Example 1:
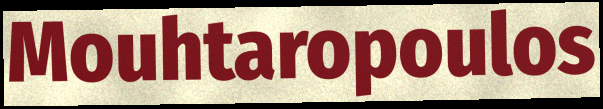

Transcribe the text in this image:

Mouhtaropoulos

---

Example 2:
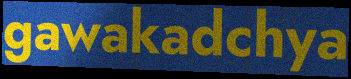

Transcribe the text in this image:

gawakadchya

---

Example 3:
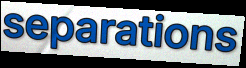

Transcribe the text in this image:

separations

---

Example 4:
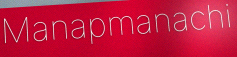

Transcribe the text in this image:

Manapmanachi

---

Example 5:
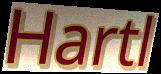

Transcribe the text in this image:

Hartl